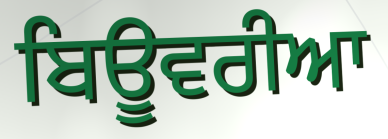
ਬਿਊਵਰੀਆ